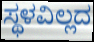
ಸ್ಥಳವಿಲ್ಲದ